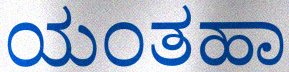
ಯಂತಹಾ